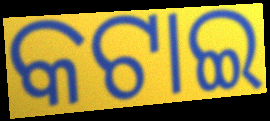
କଟାଇ